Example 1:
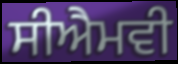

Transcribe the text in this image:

ਸੀਐਮਵੀ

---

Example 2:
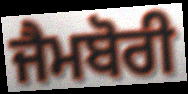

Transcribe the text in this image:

ਜੈਮਬੋਰੀ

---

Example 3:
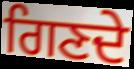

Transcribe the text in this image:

ਗਿਣਦੇ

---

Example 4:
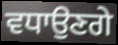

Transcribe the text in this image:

ਵਧਾਉਣਗੇ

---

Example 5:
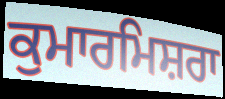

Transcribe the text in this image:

ਕੁਮਾਰਮਿਸ਼ਰਾ